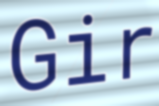
Gir